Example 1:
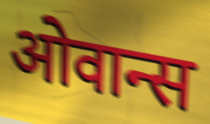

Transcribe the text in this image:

ओवान्स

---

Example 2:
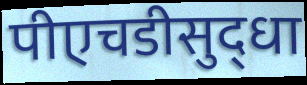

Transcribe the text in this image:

पीएचडीसुद्धा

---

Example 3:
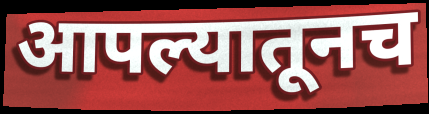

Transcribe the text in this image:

आपल्यातूनच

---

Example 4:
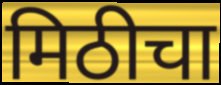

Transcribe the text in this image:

मिठीचा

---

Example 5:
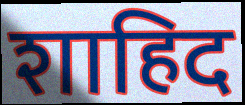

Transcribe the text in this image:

शाहिद